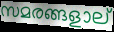
സമരങ്ങളാല്